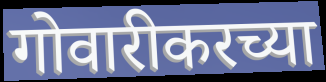
गोवारीकरच्या